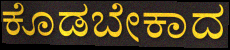
ಕೊಡಬೇಕಾದ